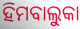
ହିମବାଲୁକା